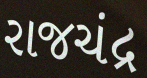
રાજચંદ્ર